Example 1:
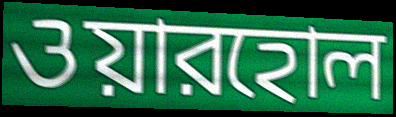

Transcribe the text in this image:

ওয়ারহোল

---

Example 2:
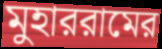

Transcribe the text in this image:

মুহাররামের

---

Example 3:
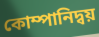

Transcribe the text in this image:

কোম্পানিদ্বয়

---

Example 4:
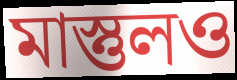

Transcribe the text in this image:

মাস্তুলও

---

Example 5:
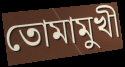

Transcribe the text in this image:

তোমামুখী